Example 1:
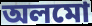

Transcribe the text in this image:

অলমো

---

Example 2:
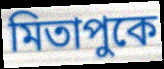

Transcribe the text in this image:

মিতাপুকে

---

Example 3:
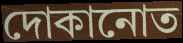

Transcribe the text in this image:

দোকানোত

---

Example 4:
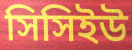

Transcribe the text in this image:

সিসিইউ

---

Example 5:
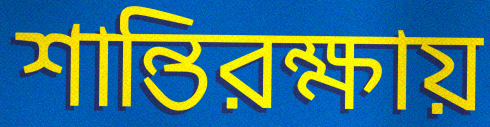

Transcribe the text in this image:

শান্তিরক্ষায়